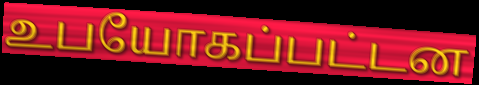
உபயோகப்பட்டன